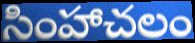
సింహాచలం